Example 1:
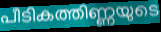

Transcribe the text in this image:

പീടികത്തിണ്ണയുടെ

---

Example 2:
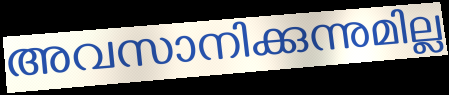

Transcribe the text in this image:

അവസാനിക്കുന്നുമില്ല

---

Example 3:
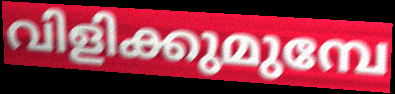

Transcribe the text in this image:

വിളിക്കുമുമ്പേ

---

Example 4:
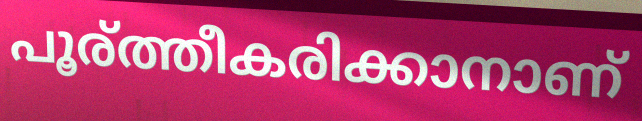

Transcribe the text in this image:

പൂര്ത്തീകരിക്കാനാണ്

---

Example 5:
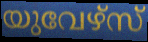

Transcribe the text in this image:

യുവേഴ്സ്